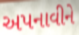
અપનાવીને